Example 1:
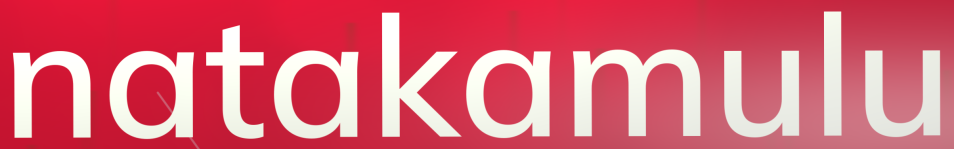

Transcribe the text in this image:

natakamulu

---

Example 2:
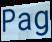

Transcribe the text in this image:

Pag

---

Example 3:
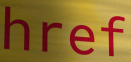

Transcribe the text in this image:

href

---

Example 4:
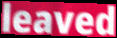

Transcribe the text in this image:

leaved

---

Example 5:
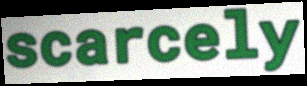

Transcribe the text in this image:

scarcely